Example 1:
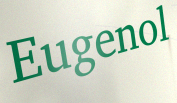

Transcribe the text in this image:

Eugenol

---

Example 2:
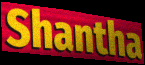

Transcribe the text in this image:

Shantha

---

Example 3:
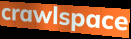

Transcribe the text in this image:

crawlspace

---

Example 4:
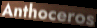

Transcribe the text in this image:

Anthoceros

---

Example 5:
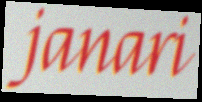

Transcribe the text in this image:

janari